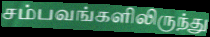
சம்பவங்களிலிருந்து